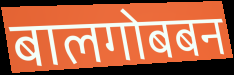
बालगोबबन